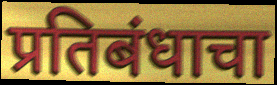
प्रतिबंधाचा